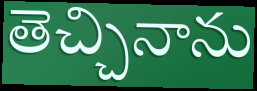
తెచ్చినాను